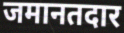
जमानतदार